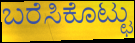
ಬರೆಸಿಕೊಟ್ಟು